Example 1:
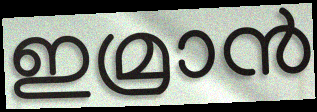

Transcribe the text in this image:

ഇമ്രാൻ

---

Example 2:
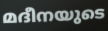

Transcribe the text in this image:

മദീനയുടെ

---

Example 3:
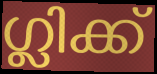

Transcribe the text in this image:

ഗ്ലിക്ക്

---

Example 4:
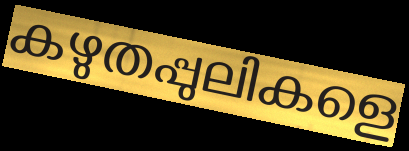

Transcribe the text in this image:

കഴുതപ്പുലികളെ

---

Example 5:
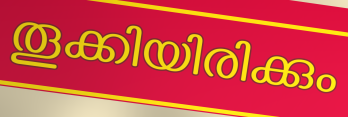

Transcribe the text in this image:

തൂക്കിയിരിക്കും